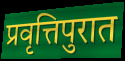
प्रवृत्तिपुरात